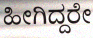
ಹೀಗಿದ್ದರೇ